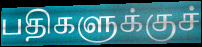
பதிகளுக்குச்